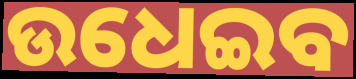
ଉଧେଇବ